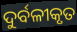
ଦୁର୍ବଳୀକୃତ